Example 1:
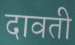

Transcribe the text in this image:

दावती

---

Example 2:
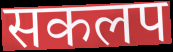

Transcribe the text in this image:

सकलप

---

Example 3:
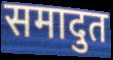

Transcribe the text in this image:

समादुत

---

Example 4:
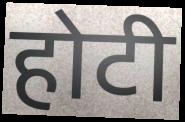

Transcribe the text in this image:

होटी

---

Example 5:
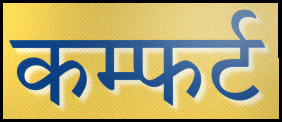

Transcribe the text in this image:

कम्फर्ट